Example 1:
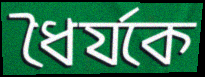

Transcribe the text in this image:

ধৈর্যকে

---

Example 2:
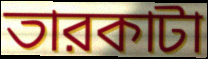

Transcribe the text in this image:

তারকাটা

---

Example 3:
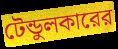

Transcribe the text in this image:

টেন্ডুলকারের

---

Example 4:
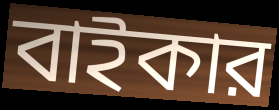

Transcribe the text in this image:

বাইকার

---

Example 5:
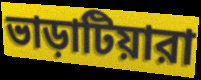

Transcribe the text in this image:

ভাড়াটিয়ারা